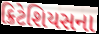
ક્રિટેશિયસના